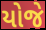
યોજે